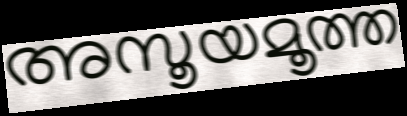
അസൂയമൂത്ത